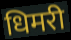
धिमरी